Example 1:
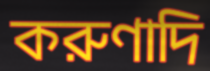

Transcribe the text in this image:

করুণাদি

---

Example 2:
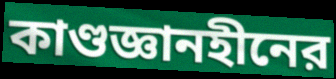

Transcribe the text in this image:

কাণ্ডজ্ঞানহীনের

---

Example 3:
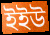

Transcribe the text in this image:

ইইউ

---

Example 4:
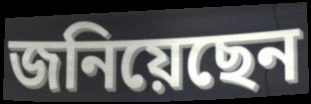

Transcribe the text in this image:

জনিয়েছেন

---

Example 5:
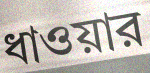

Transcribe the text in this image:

ধাওয়ার